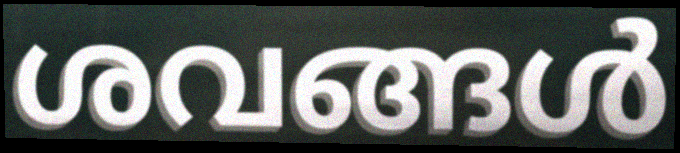
ശവങ്ങൾ